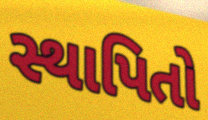
સ્થાપિતો